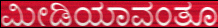
ಮೀಡಿಯಾವಂತೂ